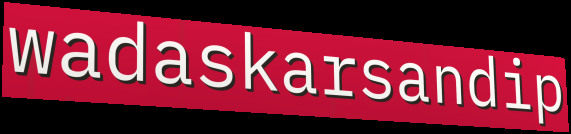
wadaskarsandip